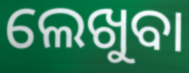
ଲେଖୁବା